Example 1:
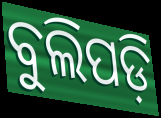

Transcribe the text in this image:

ବୁଲିପଡ଼ି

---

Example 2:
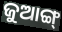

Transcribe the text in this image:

ଜୁଆଙ୍ଗ୍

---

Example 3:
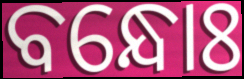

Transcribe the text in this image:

ବନ୍ଧୋଃ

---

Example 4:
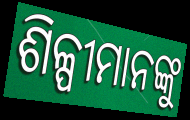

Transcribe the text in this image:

ଶିଳ୍ପୀମାନଙ୍କୁ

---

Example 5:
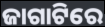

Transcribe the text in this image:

ଜାଗାଟିରେ